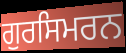
ਗੁਰਸਿਮਰਨ